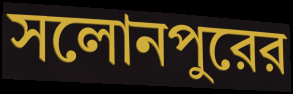
সলোনপুরের